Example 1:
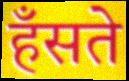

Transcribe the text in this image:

हँसते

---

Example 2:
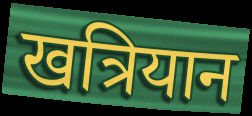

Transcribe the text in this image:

खत्रियान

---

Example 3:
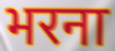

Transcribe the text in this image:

भरना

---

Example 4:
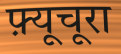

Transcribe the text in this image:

फ़्यूचूरा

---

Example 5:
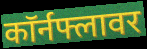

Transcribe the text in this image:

कॉर्नफ्लावर